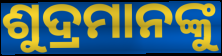
ଶୁଦ୍ରମାନଙ୍କୁ